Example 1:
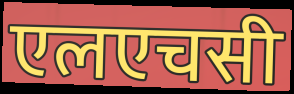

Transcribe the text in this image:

एलएचसी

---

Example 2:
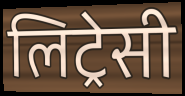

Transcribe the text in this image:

लिट्रेसी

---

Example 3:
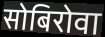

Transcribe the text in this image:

सोबिरोवा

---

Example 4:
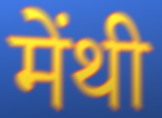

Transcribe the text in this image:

मेंथी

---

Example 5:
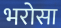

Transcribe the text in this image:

भरोसा